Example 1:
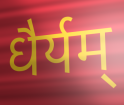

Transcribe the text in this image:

धैर्यम्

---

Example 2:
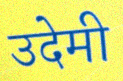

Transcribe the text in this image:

उदेमी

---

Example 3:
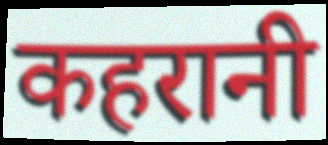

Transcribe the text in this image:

कहरानी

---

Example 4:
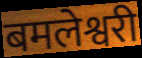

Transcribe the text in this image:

बमलेश्वरी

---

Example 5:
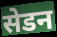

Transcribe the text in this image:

सेडन